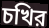
চখির